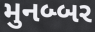
મુનબ્બર